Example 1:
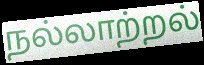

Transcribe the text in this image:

நல்லாற்றல்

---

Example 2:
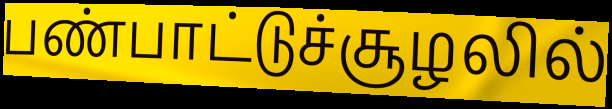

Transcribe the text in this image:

பண்பாட்டுச்சூழலில்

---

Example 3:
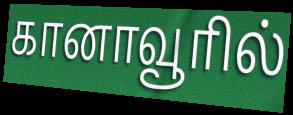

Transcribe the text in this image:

கானாவூரில்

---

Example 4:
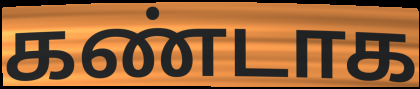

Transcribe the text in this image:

கண்டாக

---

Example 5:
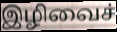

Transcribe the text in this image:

இழிவைச்